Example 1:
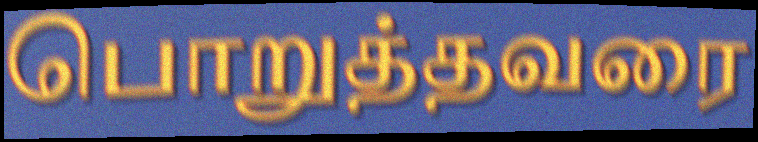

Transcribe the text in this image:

பொறுத்தவரை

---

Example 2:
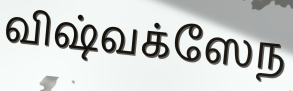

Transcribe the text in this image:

விஷ்வக்ஸேந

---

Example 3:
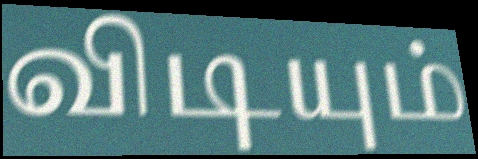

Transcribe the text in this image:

விடியும்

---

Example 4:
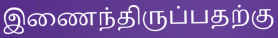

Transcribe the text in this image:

இணைந்திருப்பதற்கு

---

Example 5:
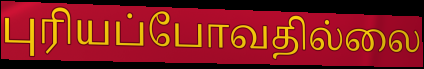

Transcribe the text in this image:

புரியப்போவதில்லை